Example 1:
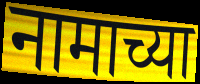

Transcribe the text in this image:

नामाच्या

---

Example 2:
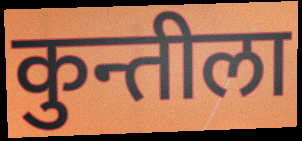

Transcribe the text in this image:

कुन्तीला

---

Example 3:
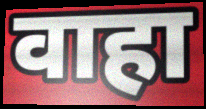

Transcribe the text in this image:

वाहा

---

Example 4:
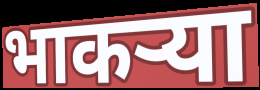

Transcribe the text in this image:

भाकऱ्या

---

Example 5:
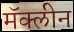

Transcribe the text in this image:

मॅक्लीन